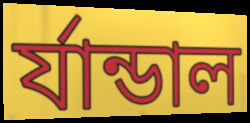
র্যান্ডাল